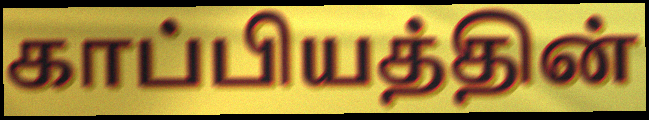
காப்பியத்தின்